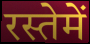
रस्तेमें